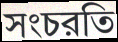
সংচরতি